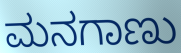
ಮನಗಾಣು